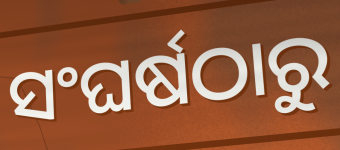
ସଂଘର୍ଷଠାରୁ